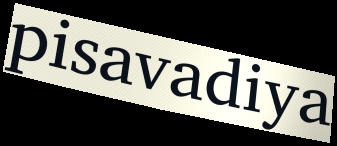
pisavadiya